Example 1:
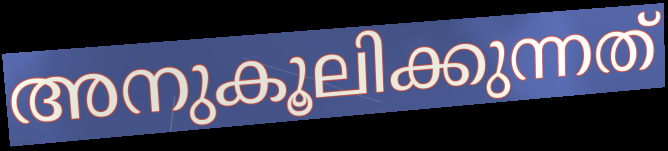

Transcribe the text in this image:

അനുകൂലിക്കുന്നത്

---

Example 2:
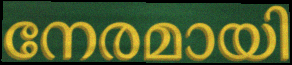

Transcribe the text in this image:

നേരമായി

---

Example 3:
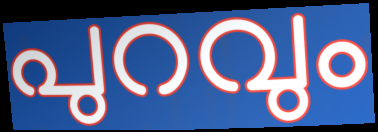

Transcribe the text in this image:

പുറവും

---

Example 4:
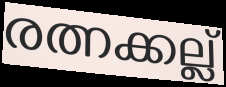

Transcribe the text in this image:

രത്നക്കല്ല്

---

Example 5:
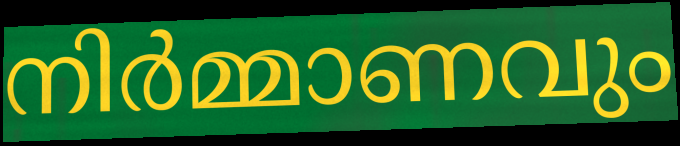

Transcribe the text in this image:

നിർമ്മാണവും